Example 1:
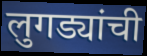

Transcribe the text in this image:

लुगड्यांची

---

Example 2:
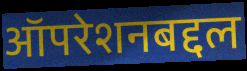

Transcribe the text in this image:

ऑपरेशनबद्दल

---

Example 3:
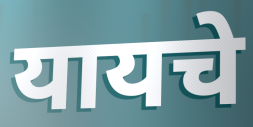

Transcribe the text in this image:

यायचे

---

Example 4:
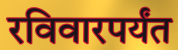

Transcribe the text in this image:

रविवारपर्यंत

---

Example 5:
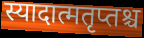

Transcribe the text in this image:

स्यादात्मतृप्तश्च